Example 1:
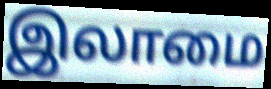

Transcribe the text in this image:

இலாமை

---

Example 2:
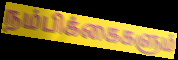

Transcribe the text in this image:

நம்பிக்கைகளும்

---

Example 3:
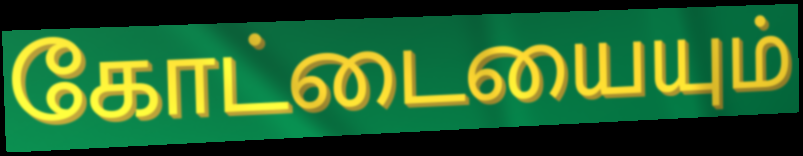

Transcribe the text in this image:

கோட்டையையும்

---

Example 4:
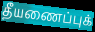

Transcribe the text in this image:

தீயணைப்புக்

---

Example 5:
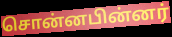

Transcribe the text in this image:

சொன்னபின்னர்